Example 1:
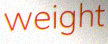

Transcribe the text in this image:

weight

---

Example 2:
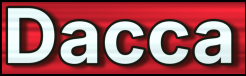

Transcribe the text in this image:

Dacca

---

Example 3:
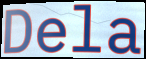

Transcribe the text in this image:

Dela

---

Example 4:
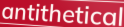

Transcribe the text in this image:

antithetical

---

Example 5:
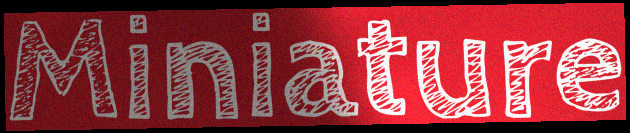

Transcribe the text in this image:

Miniature